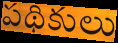
పథికులు